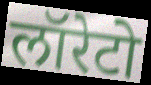
लॉरेटो